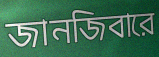
জানজিবারে